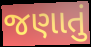
જણાતું